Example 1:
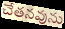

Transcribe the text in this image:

చేతనవును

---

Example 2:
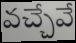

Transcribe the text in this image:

వచ్చేవే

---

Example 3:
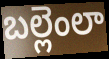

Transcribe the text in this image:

బల్లెంలా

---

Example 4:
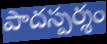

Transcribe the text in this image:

పాదస్పర్శం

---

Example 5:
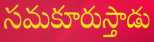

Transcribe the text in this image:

సమకూరుస్తాడు